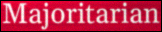
Majoritarian